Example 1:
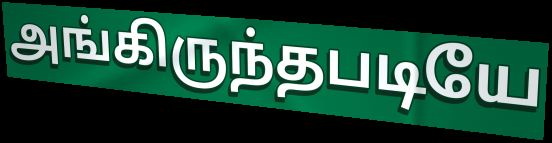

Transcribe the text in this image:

அங்கிருந்தபடியே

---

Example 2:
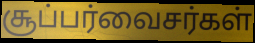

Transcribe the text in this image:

சூப்பர்வைசர்கள்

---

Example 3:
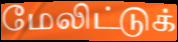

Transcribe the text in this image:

மேலிட்டுக்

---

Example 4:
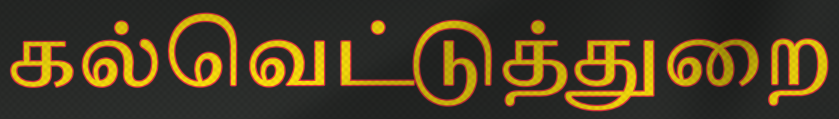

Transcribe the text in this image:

கல்வெட்டுத்துறை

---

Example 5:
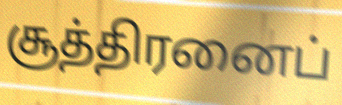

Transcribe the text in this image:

சூத்திரனைப்